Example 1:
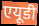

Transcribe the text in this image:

एयूडी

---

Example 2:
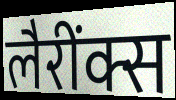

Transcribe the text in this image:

लैरींक्स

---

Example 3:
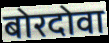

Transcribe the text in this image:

बोरदोवा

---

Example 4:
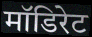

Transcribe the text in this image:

मॉडिरेट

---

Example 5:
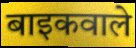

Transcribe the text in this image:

बाइकवाले